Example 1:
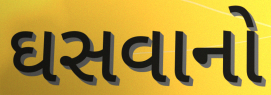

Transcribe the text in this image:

ઘસવાનો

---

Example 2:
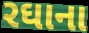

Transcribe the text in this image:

રઘાના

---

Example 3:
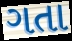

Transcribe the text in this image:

ગતા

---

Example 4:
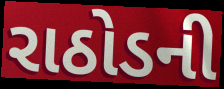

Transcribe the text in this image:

રાઠોડની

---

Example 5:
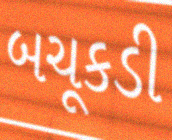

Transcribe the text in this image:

બચૂકડી